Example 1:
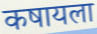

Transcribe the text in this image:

कषायला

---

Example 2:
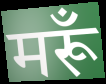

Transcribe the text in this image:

मरूँ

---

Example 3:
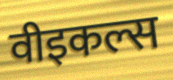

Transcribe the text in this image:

वीइकल्‍स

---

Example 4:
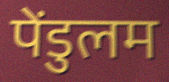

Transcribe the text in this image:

पेंडुलम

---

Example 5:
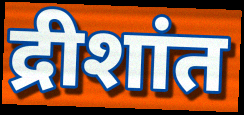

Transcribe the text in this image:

द्रीशांत